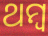
ଥମ୍ବ